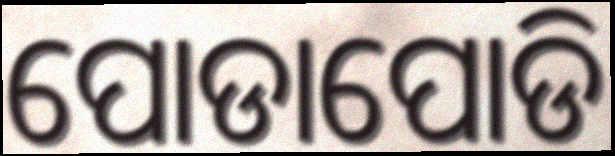
ପୋଡାପୋଡି